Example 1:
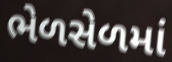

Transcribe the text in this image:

ભેળસેળમાં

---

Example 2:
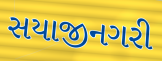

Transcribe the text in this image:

સયાજીનગરી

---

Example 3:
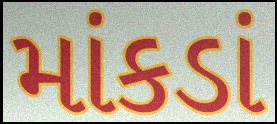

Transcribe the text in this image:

માંકડાં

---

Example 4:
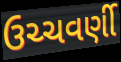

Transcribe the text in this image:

ઉચ્ચવર્ણી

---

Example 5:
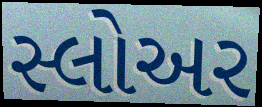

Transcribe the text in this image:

સ્લોઅર